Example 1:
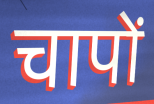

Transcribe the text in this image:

चापों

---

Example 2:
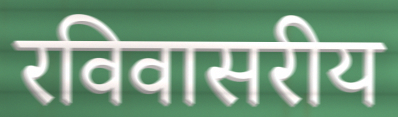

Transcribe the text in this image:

रविवासरीय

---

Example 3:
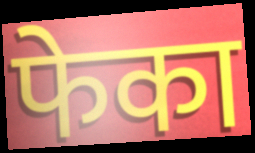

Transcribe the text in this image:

फेका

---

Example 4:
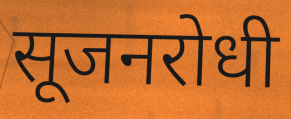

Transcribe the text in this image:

सूजनरोधी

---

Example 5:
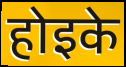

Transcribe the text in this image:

होइके